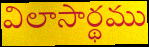
విలాసార్థము